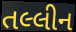
તલ્લીન